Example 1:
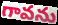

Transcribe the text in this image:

గావను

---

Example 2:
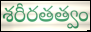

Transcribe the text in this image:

శరీరతత్వం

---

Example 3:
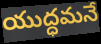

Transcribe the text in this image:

యుద్ధమనే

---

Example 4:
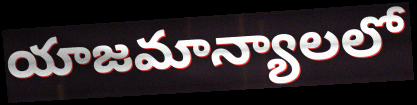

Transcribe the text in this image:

యాజమాన్యాలలో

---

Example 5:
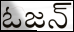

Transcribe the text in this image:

ఓజన్